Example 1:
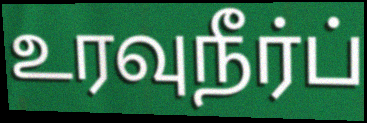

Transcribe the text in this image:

உரவுநீர்ப்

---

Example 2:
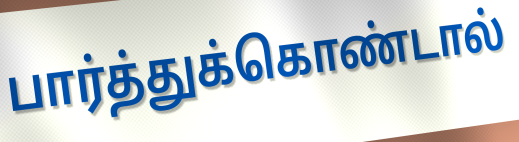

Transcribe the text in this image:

பார்த்துக்கொண்டால்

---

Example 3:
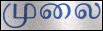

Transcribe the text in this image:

முலை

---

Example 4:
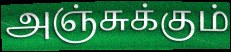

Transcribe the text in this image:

அஞ்சுக்கும்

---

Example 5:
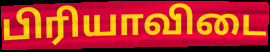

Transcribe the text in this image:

பிரியாவிடை